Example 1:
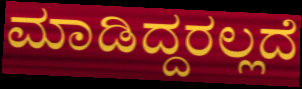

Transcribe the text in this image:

ಮಾಡಿದ್ದರಲ್ಲದೆ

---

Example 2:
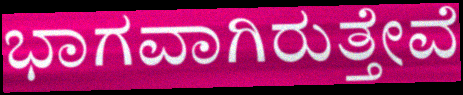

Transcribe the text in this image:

ಭಾಗವಾಗಿರುತ್ತೇವೆ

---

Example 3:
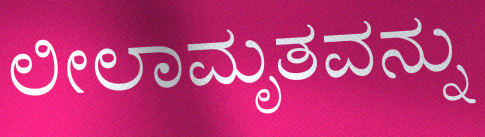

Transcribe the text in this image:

ಲೀಲಾಮೃತವನ್ನು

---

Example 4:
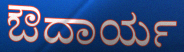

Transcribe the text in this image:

ಔದಾರ್ಯ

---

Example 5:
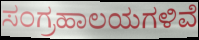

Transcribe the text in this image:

ಸಂಗ್ರಹಾಲಯಗಳಿವೆ